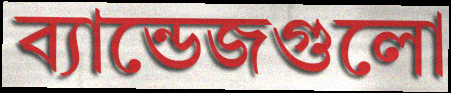
ব্যান্ডেজগুলো